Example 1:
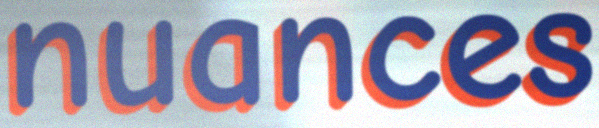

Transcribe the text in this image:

nuances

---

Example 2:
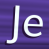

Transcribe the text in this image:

Je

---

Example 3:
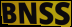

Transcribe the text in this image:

BNSS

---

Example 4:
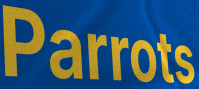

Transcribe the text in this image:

Parrots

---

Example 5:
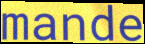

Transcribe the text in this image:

mande